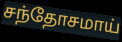
சந்தோசமாய்